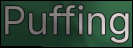
Puffing